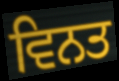
ਵਿਨਤ